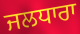
ਜਲਧਾਰਾ